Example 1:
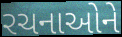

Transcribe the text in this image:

રચનાઓને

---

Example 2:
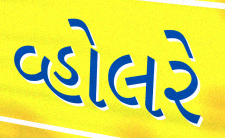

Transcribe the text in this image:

વ્હોલરે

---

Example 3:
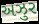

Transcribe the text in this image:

અઝુર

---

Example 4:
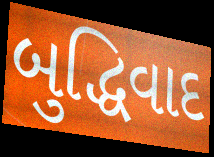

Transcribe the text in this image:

બુદ્ધિવાદ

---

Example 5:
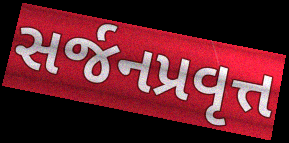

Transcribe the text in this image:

સર્જનપ્રવૃત્ત